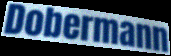
Dobermann